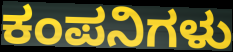
ಕಂಪನಿಗಳು